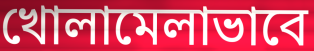
খোলামেলাভাবে